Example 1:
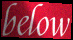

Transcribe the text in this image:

below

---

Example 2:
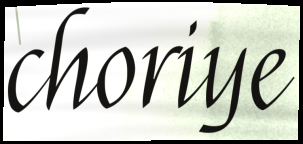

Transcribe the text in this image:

choriye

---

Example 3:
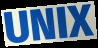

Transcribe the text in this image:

UNIX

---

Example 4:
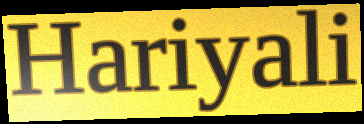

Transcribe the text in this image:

Hariyali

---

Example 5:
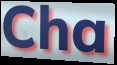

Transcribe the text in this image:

Cha